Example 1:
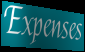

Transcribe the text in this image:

Expenses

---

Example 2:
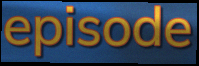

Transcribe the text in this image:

episode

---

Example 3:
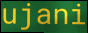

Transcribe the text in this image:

ujani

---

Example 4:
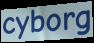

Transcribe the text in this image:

cyborg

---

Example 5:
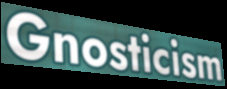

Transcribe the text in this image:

Gnosticism